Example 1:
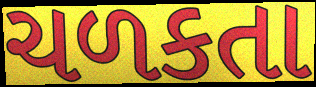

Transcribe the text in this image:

ચળકતા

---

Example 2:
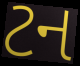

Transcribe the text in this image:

ટન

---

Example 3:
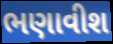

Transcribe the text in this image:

ભણાવીશ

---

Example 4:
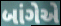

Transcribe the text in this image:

બાંગેએ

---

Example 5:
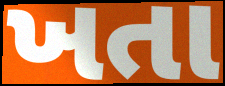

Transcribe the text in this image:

ખતા